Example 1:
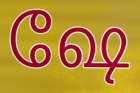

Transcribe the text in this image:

ஷே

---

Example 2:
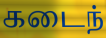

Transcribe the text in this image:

கடைந்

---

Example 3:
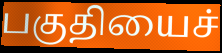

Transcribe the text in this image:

பகுதியைச்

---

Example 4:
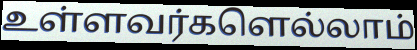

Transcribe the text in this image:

உள்ளவர்களெல்லாம்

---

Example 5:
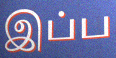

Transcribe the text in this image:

இப்ப